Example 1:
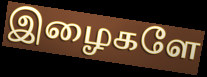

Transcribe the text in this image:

இழைகளே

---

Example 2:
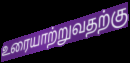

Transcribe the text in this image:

உரையாற்றுவதற்கு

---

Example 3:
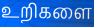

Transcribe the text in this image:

உறிகளை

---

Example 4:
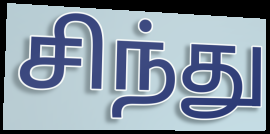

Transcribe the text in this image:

சிந்து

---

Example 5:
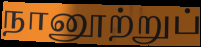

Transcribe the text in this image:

நானூற்றுப்